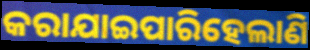
କରାଯାଇପାରିହେଲାଣି